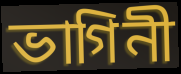
ভাগিনী